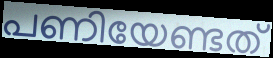
പണിയേണ്ടത്